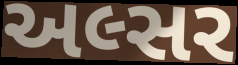
અલ્સર